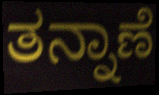
ತನ್ನಾಣೆ